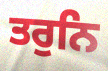
ਤਰੁਨਿ